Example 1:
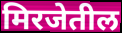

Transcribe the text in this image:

मिरजेतील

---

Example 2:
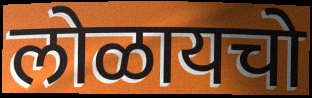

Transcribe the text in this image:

लोळायचो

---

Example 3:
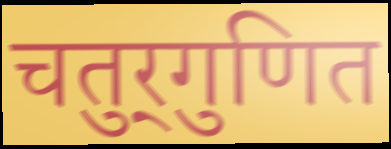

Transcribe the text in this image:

चतुर्गुणित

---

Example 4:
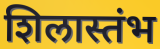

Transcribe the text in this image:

शिलास्तंभ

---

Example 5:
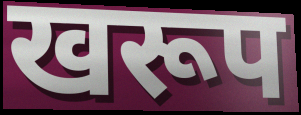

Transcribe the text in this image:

खरूप